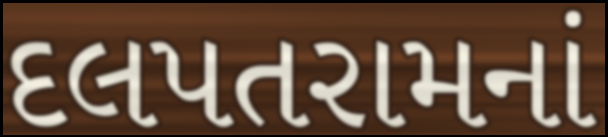
દલપતરામનાં